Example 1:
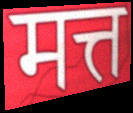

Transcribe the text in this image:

मत्त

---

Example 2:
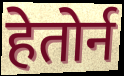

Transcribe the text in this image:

हेतोर्न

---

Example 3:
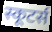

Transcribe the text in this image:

स्‍कूटर्स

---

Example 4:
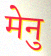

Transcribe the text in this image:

मेनु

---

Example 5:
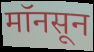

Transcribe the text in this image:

मॉनसून